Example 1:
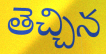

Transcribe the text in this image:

తెచ్చిన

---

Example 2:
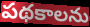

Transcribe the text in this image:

పథకాలను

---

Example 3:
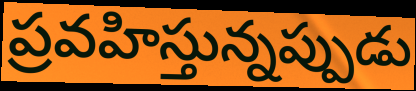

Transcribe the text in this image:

ప్రవహిస్తున్నప్పుడు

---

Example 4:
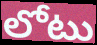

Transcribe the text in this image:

లోటు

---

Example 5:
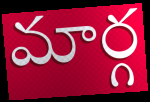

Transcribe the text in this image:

మార్గ